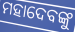
ମହାଦେବଙ୍କୁ